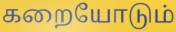
கறையோடும்